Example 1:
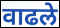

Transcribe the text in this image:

वाढले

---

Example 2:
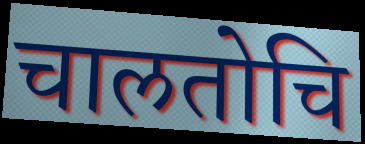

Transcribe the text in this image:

चालतोचि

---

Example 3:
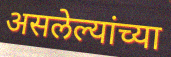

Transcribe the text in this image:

असलेल्यांच्या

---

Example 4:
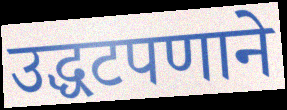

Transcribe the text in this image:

उद्धटपणाने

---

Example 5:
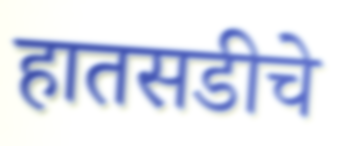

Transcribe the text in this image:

हातसडीचे